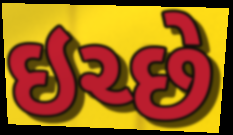
ઇચ્છે